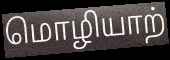
மொழியாற்